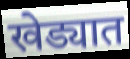
खेड्यात